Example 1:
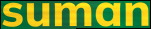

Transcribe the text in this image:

suman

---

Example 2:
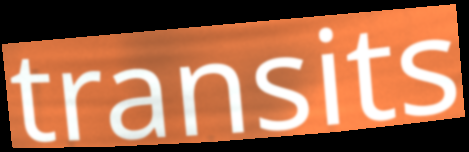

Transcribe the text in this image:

transits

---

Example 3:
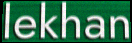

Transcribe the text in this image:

lekhan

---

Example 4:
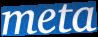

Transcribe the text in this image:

meta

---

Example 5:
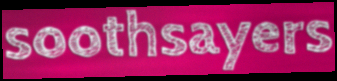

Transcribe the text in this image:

soothsayers